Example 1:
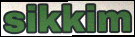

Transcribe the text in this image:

sikkim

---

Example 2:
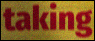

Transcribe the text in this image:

taking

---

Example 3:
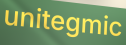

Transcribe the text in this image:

unitegmic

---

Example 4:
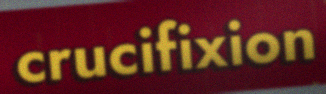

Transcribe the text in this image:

crucifixion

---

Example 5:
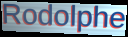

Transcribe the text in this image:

Rodolphe